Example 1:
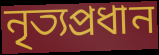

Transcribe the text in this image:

নৃত্যপ্রধান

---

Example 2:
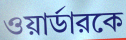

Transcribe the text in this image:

ওয়ার্ডারকে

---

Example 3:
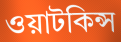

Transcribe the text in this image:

ওয়াটকিন্স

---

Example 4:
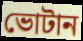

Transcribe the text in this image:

ভোটান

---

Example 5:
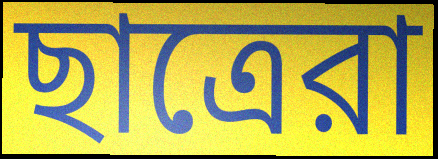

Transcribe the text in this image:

ছাত্রেরা